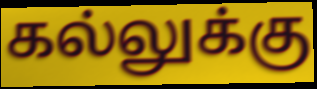
கல்லுக்கு